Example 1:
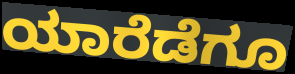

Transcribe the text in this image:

ಯಾರೆಡೆಗೂ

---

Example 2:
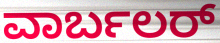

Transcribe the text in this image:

ವಾರ್ಬಲರ್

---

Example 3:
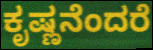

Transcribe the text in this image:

ಕೃಷ್ಣನೆಂದರೆ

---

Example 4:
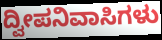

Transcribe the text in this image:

ದ್ವೀಪನಿವಾಸಿಗಳು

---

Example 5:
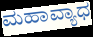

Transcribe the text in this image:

ಮಹಾವ್ಯಾಧ